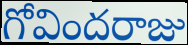
గోవిందరాజు